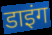
डाइंग